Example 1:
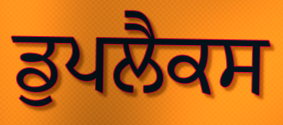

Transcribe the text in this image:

ਡੁਪਲੈਕਸ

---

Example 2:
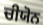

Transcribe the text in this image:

ਚੀਯੋਨ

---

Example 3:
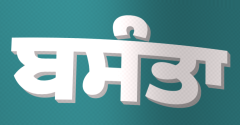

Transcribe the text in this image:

ਬਸੰਤਾ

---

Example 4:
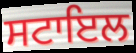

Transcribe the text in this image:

ਸਟਾਇਲ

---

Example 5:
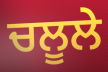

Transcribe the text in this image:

ਚਲੂਲੇ